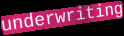
underwriting